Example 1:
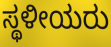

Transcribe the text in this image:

ಸ್ಥಳೀಯರು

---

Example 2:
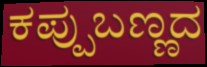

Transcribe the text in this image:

ಕಪ್ಪುಬಣ್ಣದ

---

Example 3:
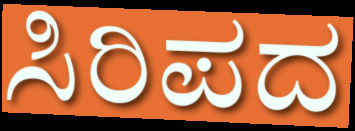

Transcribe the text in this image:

ಸಿರಿಪದ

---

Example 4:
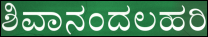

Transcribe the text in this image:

ಶಿವಾನಂದಲಹರಿ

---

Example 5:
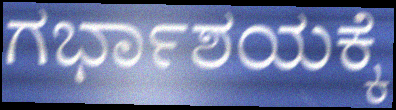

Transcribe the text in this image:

ಗರ್ಭಾಶಯಕ್ಕೆ